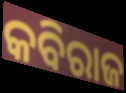
କବିରାଜ